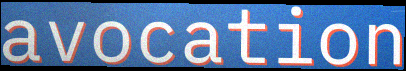
avocation